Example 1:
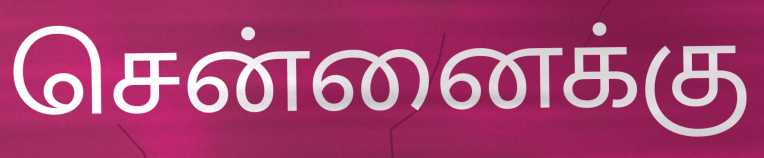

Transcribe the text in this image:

சென்னைக்கு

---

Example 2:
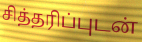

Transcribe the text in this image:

சித்தரிப்புடன்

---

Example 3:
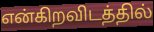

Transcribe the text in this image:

என்கிறவிடத்தில்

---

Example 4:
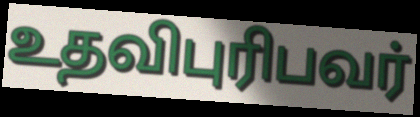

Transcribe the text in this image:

உதவிபுரிபவர்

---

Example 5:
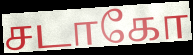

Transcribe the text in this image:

சடாகோ